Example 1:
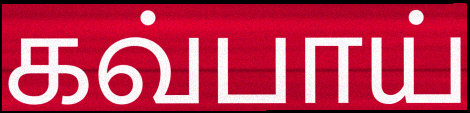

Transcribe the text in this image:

கவ்பாய்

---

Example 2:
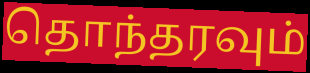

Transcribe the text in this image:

தொந்தரவும்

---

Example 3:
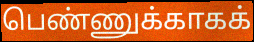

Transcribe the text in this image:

பெண்ணுக்காகக்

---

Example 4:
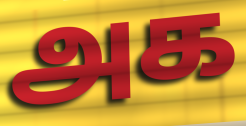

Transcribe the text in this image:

அக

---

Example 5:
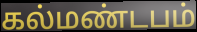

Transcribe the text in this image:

கல்மண்டபம்